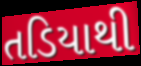
તડિયાથી